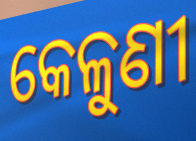
କେଳୁଣୀ